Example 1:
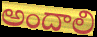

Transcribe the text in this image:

అందాలి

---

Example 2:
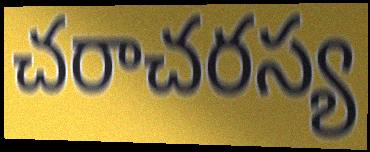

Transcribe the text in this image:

చరాచరస్య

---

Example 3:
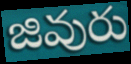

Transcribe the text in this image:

జివురు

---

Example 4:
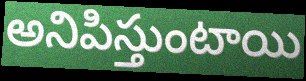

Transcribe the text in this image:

అనిపిస్తుంటాయి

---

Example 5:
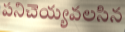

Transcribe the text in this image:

పనిచెయ్యవలసిన